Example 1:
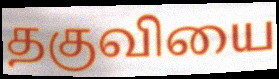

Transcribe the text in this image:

தகுவியை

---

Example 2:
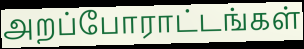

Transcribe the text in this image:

அறப்போராட்டங்கள்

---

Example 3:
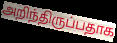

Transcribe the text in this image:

அறிந்திருப்பதாக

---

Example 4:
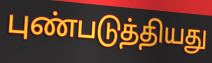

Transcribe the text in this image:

புண்படுத்தியது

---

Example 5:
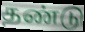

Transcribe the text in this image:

தண்டு